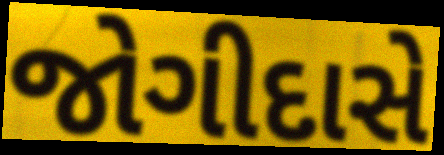
જોગીદાસે